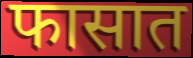
फासात